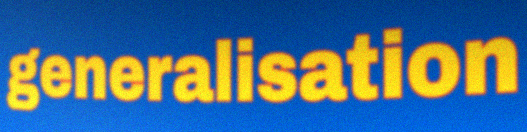
generalisation